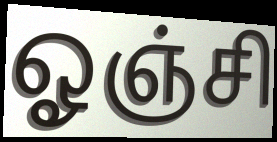
ஓஞ்சி